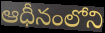
ఆధీనంలోని